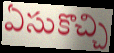
ఏసుకొచ్చి